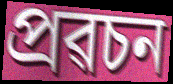
প্ৰৱচন